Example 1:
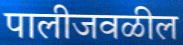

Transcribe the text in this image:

पालीजवळील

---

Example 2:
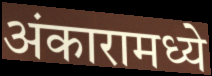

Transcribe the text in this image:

अंकारामध्ये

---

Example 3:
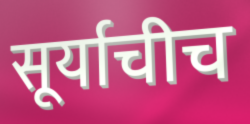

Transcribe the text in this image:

सूर्याचीच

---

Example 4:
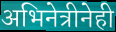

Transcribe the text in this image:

अभिनेत्रीनेही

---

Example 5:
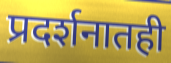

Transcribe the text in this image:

प्रदर्शनातही